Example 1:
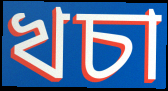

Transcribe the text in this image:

খচা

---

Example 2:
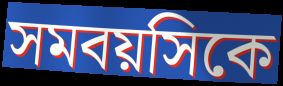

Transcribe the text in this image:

সমবয়সিকে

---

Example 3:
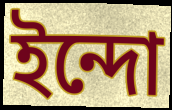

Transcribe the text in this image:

ইন্দো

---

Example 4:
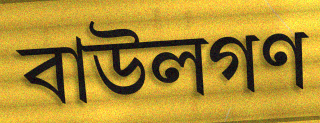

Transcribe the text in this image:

বাউলগণ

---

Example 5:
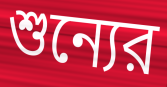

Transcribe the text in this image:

শুন্যের